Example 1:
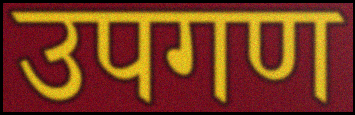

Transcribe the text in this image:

उपगण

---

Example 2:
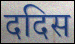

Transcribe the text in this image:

ददिस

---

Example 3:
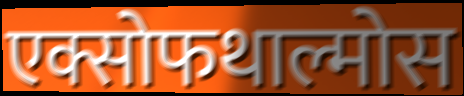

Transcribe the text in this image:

एक्सोफथाल्मोस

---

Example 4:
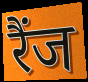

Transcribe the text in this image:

रैंज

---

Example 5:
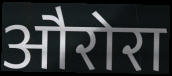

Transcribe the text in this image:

औरोरा